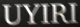
UYIRI